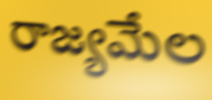
రాజ్యమేల